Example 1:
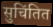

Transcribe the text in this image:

सुचिंतित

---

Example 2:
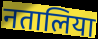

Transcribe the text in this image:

नतालिया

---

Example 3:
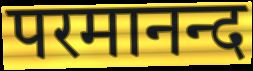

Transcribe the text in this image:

परमानन्द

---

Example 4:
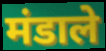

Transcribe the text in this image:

मंडाले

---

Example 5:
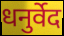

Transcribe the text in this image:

धनुर्वेद